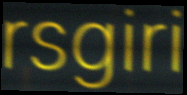
rsgiri